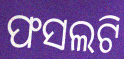
ଫସଲଟି